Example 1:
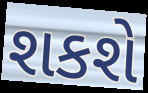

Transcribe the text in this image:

શકશે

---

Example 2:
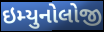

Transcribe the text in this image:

ઇમ્યુનોલોજી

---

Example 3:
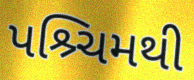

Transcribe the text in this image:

પશ્ર્ચિમથી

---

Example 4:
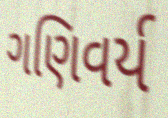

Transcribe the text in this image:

ગણિવર્ય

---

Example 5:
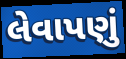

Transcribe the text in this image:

લેવાપણું